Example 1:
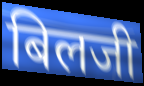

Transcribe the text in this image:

बिलजी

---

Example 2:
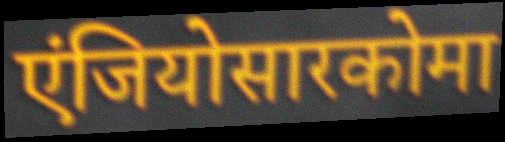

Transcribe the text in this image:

एंजियोसारकोमा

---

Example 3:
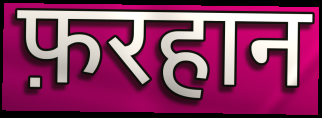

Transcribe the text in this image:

फ़रहान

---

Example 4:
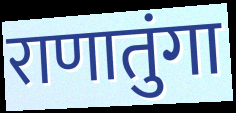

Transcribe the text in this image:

राणातुंगा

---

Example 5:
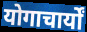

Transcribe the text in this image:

योगाचार्यों